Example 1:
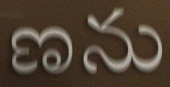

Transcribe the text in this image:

ణను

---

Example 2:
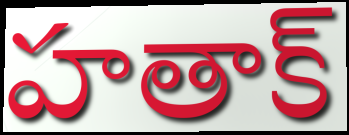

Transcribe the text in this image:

హతాక్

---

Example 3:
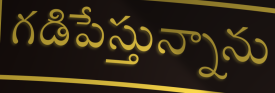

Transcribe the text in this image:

గడిపేస్తున్నాను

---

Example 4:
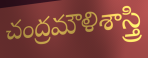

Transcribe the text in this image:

చంద్రమౌళిశాస్త్రి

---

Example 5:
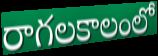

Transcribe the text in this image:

రాగలకాలంలో